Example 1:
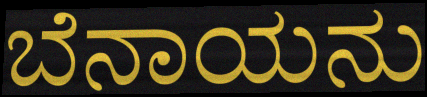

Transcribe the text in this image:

ಬೆನಾಯನು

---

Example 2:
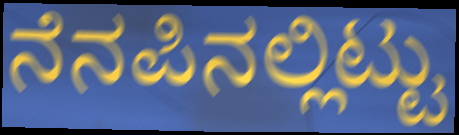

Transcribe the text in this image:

ನೆನಪಿನಲ್ಲಿಟ್ಟು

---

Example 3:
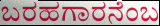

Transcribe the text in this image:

ಬರಹಗಾರನೆಂಬ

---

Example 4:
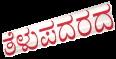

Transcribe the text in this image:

ತೆಳುಪದರದ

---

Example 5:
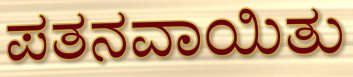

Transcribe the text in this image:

ಪತನವಾಯಿತು